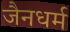
जैनधर्म